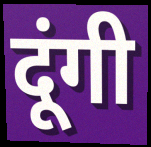
दूंगी